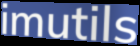
imutils